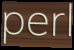
perl